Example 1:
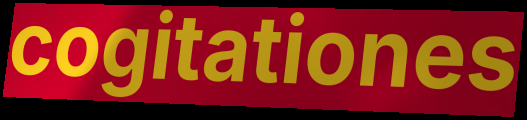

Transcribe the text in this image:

cogitationes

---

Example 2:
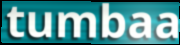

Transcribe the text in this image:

tumbaa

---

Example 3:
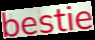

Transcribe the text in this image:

bestie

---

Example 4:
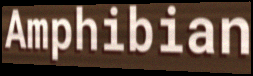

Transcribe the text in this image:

Amphibian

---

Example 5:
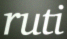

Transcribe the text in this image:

ruti